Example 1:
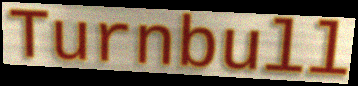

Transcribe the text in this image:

Turnbull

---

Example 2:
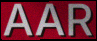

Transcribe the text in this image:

AAR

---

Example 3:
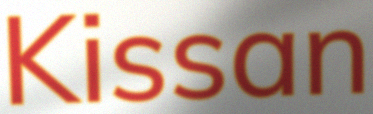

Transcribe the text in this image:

Kissan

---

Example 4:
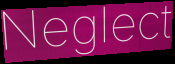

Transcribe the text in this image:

Neglect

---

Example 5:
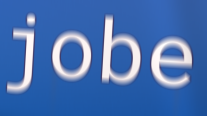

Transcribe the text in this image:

jobe